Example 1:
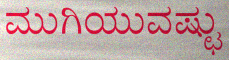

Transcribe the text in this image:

ಮುಗಿಯುವಷ್ಟು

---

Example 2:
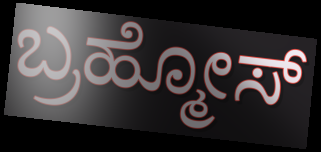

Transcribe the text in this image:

ಬ್ರಹ್ಮೋಸ್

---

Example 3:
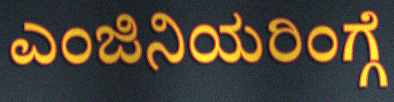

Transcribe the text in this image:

ಎಂಜಿನಿಯರಿಂಗ್ಗೆ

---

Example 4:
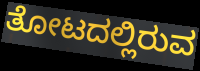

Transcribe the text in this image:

ತೋಟದಲ್ಲಿರುವ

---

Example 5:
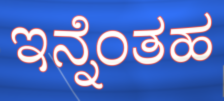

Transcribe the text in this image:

ಇನ್ನೆಂತಹ